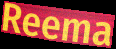
Reema